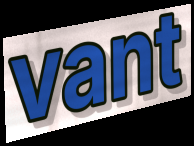
vant